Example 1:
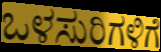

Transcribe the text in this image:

ಒಳಸುರಿಗಳಿಗೆ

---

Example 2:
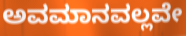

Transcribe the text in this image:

ಅವಮಾನವಲ್ಲವೇ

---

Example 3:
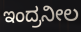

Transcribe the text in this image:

ಇಂದ್ರನೀಲ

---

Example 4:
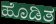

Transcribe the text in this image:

ಹೊಡಿತ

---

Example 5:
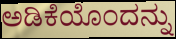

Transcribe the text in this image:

ಅಡಿಕೆಯೊಂದನ್ನು